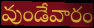
వుండేవారం